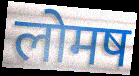
लोमष